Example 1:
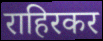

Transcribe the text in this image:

राहिरकर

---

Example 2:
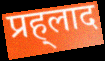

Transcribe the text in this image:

प्रह्‌लाद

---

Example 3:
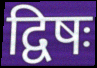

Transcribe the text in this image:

द्विषः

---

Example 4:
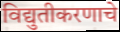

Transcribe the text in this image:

विद्युतीकरणाचे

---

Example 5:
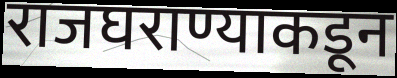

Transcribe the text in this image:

राजघराण्याकडून